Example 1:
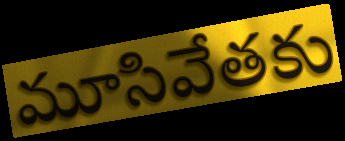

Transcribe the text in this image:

మూసివేతకు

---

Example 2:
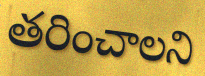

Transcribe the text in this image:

తరించాలని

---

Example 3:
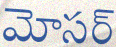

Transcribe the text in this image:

మోసర్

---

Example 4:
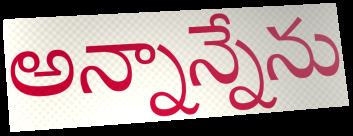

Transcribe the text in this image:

అన్నాన్నేను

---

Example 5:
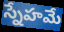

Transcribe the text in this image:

స్నేహమే